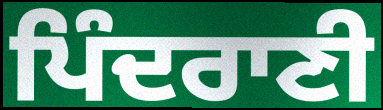
ਪਿੰਦਰਾਣੀ